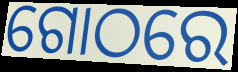
ଗୋଠରେ